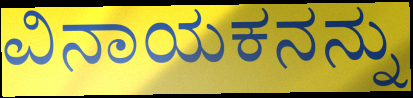
ವಿನಾಯಕನನ್ನು